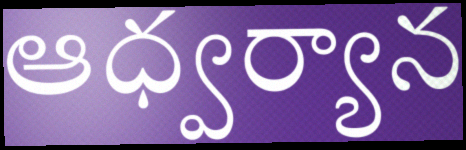
ఆధ్వర్యాన